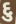
દુ